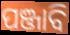
ପଞ୍ଜାବି